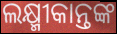
ଲକ୍ଷ୍ମୀକାନ୍ତଙ୍କ